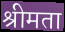
श्रीमता